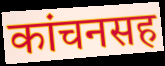
कांचनसह